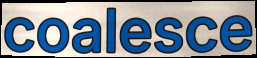
coalesce